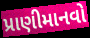
પ્રાણીમાનવો